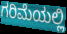
ಗರಿಮೆಯಲ್ಲಿ